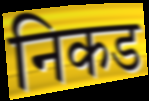
निकड